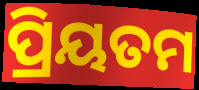
ପ୍ରିୟତମ